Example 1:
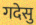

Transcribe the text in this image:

गदेसु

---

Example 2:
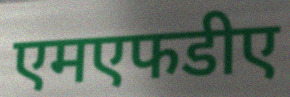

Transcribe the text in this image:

एमएफडीए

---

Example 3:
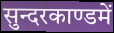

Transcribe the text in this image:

सुन्दरकाण्डमें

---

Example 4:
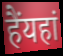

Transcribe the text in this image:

हैंयहां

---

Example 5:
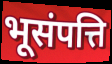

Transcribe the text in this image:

भूसंपत्ति